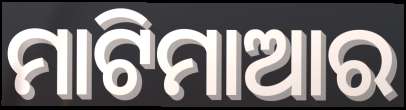
ମାଟିମାଆର